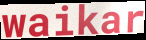
waikar